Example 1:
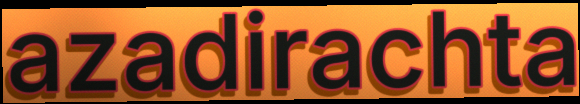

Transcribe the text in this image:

azadirachta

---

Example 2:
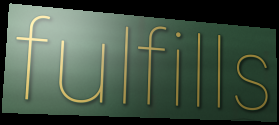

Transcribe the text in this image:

fulfills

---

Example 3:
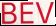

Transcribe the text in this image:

BEV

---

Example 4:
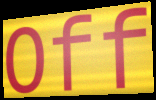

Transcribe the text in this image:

Off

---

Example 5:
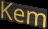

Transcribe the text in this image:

Kem